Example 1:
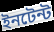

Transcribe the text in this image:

ইনটেন্ট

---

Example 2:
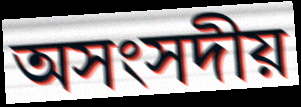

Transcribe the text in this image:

অসংসদীয়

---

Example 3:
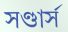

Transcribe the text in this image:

সণ্ডার্স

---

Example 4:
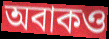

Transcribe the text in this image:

অবাকও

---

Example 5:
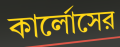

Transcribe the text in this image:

কার্লোসের